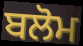
ਬਲੋਮ